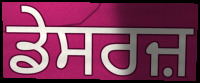
ਡੇਸਰਜ਼